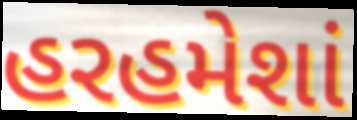
હરહમેશાં